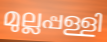
മുല്ലപ്പള്ളി